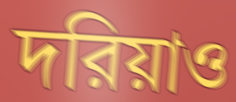
দরিয়াও